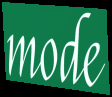
mode